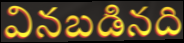
వినబడినది